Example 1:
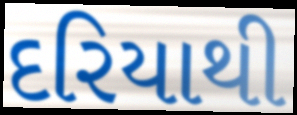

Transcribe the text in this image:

દરિયાથી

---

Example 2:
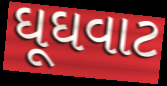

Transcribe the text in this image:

ઘૂઘવાટ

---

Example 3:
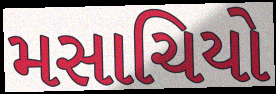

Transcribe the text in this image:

મસાચિયો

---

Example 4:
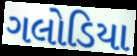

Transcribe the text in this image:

ગલોડિયા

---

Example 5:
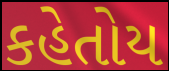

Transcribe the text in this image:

કહેતોય